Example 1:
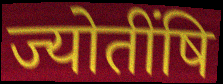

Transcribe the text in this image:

ज्योतींषि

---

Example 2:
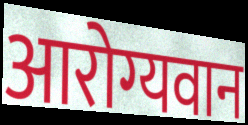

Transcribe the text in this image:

आरोग्यवान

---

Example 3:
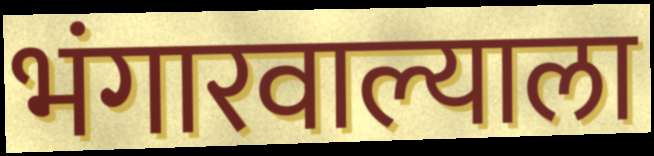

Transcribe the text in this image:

भंगारवाल्याला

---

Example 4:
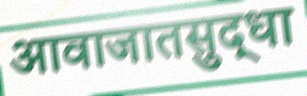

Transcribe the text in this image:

आवाजातसुद्धा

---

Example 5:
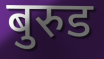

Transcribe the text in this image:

बुरुड